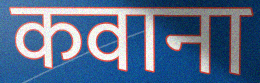
कवाना